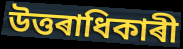
উত্তৰাধিকাৰী